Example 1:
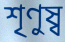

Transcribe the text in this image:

শৃণুষ্ব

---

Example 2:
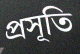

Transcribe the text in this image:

প্রসূতি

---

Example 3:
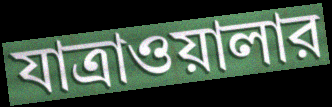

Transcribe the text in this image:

যাত্রাওয়ালার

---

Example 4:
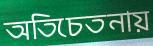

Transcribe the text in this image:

অতিচেতনায়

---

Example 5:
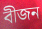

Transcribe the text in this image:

বীজন